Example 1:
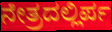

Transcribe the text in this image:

ನೇತ್ರದಲ್ಲಿರ್ಪ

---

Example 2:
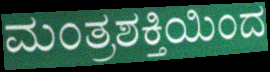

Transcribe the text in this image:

ಮಂತ್ರಶಕ್ತಿಯಿಂದ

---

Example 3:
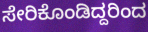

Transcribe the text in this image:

ಸೇರಿಕೊಂಡಿದ್ದರಿಂದ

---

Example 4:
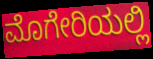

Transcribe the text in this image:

ಮೊಗೇರಿಯಲ್ಲಿ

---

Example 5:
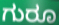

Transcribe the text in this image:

ಗುರೂ